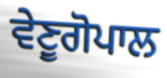
ਵੇਣੂਗੋਪਾਲ